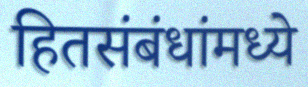
हितसंबंधांमध्ये